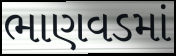
ભાણવડમાં